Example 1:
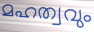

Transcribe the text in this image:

മഹത്വവും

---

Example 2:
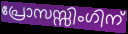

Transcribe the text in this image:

പ്രോസസ്സിംഗിന്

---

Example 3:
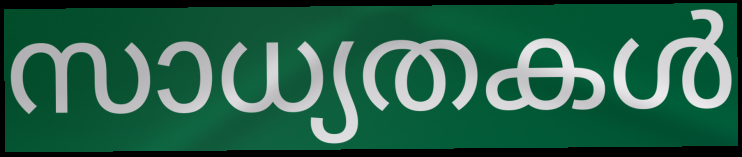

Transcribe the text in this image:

സാധ്യതകൾ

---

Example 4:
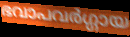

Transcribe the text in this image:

ഭവാപവർഗ്ഗായ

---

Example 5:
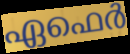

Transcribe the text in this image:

ഏഫെർ